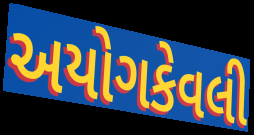
અયોગકેવલી